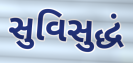
સુવિસુદ્ધં